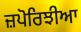
ਜ਼ਪੋਰਿਝੀਆ